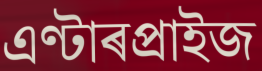
এণ্টাৰপ্ৰাইজ